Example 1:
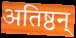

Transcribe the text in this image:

अतिष्ठन्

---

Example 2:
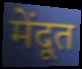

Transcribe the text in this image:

मेंदूत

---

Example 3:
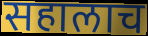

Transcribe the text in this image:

सहालाच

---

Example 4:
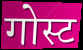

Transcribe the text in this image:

गोस्ट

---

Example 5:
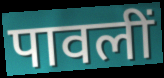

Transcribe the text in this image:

पावलीं